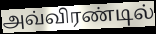
அவ்விரண்டில்